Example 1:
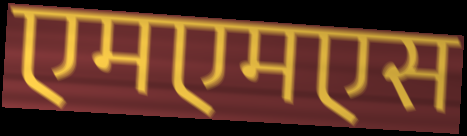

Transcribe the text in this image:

एमएमएस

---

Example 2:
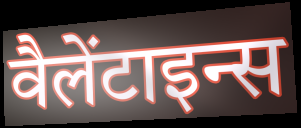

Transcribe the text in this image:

वैलेंटाइन्स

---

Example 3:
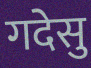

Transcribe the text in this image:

गदेसु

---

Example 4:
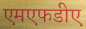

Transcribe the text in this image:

एमएफडीए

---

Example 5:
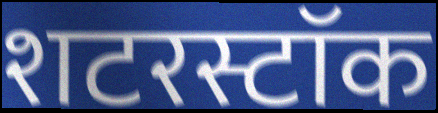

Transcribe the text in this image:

शटरस्‍टॉक